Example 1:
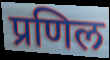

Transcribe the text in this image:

प्रणिल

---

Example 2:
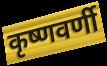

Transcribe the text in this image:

कृष्णवर्णी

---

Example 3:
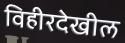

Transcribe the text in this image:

विहीरदेखील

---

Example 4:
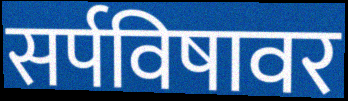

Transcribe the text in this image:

सर्पविषावर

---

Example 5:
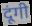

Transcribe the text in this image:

दूंगी